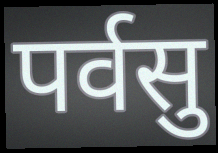
पर्वसु